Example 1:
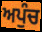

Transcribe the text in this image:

ਅਪੁੰਚ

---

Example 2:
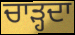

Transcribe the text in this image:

ਚਾੜ੍ਹਦਾ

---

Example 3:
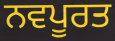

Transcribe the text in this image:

ਨਵਪੂਰਤ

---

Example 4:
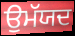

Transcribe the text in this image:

ਉਮੱਯਦ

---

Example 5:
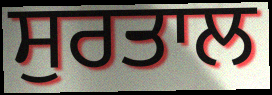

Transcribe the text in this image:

ਸੁਰਤਾਲ